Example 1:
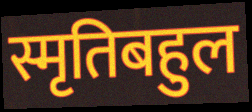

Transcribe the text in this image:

स्मृतिबहुल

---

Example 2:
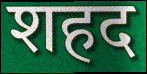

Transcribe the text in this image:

शहद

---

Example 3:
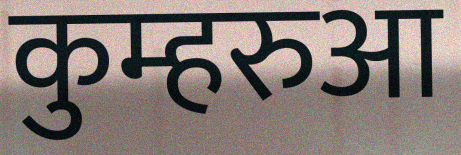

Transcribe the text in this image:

कुम्हरुआ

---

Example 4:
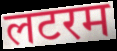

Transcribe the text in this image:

लटरम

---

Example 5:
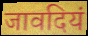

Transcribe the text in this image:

जावदियं